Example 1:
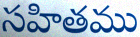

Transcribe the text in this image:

సహితము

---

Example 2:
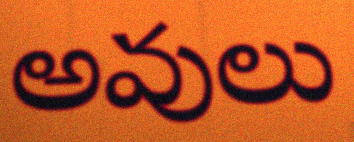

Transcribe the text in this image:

అవులు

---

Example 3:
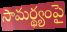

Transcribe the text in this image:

సామర్థ్యంపై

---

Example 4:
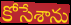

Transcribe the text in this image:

కోసేశాను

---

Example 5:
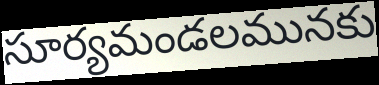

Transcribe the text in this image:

సూర్యమండలమునకు